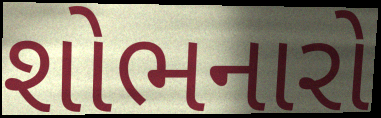
શોભનારો